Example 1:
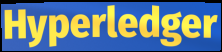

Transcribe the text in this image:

Hyperledger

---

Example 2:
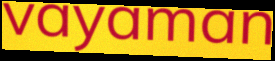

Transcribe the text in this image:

vayaman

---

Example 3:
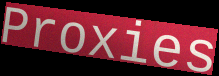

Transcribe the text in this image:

Proxies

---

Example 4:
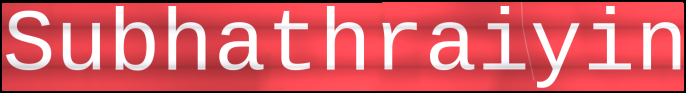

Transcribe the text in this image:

Subhathraiyin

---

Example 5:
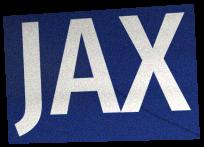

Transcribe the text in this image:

JAX